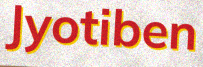
Jyotiben